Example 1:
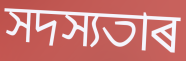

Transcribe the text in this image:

সদস্যতাৰ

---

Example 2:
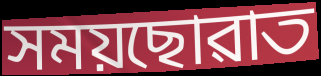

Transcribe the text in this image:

সময়ছোৱাত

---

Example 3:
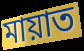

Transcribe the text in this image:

মায়াত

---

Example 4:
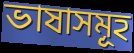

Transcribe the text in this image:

ভাষাসমূহ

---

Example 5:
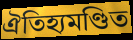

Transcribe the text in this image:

ঐতিহ্যমণ্ডিত